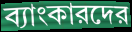
ব্যাংকারদের